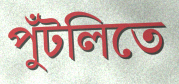
পুঁটলিতে